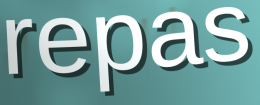
repas